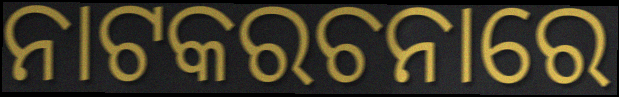
ନାଟକରଚନାରେ